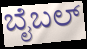
ಬೈಬಲ್